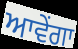
ਆਵੇਂਗਾ